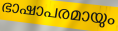
ഭാഷാപരമായും